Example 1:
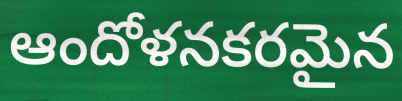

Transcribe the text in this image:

ఆందోళనకరమైన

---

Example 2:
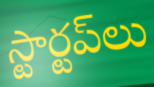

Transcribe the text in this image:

స్టార్టప్‌లు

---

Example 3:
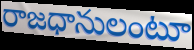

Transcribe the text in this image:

రాజధానులంటూ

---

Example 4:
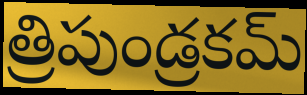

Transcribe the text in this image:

త్రిపుండ్రకమ్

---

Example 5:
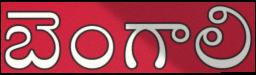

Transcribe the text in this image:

బెంగాలి